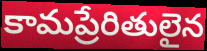
కామప్రేరితులైన